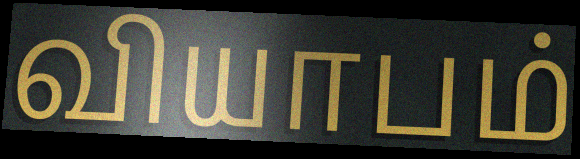
வியாபம்